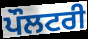
ਪੌਲਟਰੀ